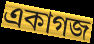
একাগজ